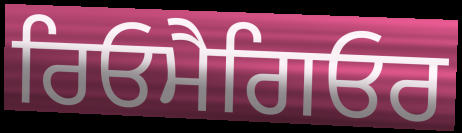
ਰਿਓਮੈਗਿਓਰ